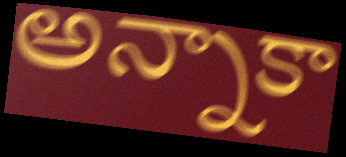
అన్నాకా